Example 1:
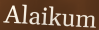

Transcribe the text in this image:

Alaikum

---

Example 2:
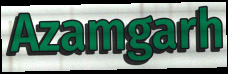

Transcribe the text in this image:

Azamgarh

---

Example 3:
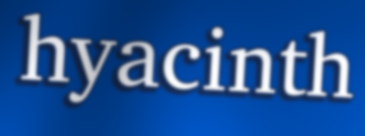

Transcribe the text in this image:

hyacinth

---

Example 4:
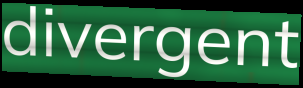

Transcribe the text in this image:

divergent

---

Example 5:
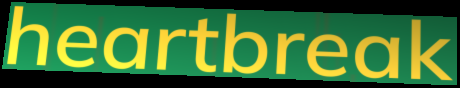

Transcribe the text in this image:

heartbreak